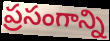
ప్రసంగాన్ని